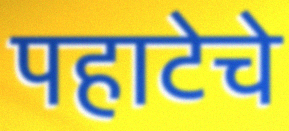
पहाटेचे